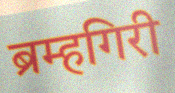
ब्रम्हगिरी